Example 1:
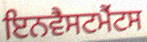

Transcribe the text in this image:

ਇਨਵੈਸਟਮੈਂਟਸ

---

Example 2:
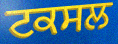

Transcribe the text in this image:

ਟਕਸਲ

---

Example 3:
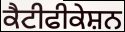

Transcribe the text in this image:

ਕੈਟੀਫੀਕੇਸ਼ਨ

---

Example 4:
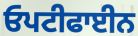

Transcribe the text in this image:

ਓਪਟੀਫਾਈਨ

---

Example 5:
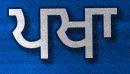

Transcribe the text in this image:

ਪਖਾ